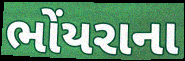
ભોંયરાના